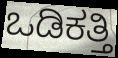
ಒಡಿಕತ್ತಿ